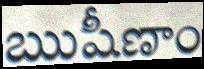
ఋషీణాం